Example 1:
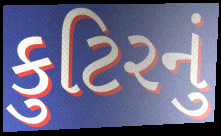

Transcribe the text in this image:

કુટિરનું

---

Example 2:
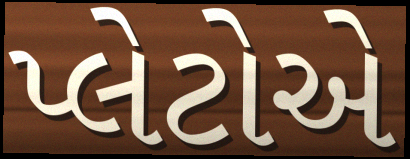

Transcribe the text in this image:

પ્લેટોએ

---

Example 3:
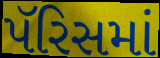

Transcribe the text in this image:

પૅરિસમાં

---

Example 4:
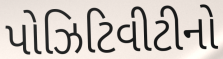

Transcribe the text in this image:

પોઝિટિવીટીનો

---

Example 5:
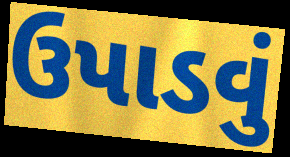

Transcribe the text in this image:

ઉપાડવું